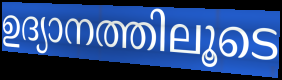
ഉദ്യാനത്തിലൂടെ